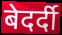
बेदर्दी